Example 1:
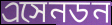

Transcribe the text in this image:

এসেনডন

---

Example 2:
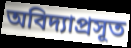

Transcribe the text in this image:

অবিদ্যাপ্রসূত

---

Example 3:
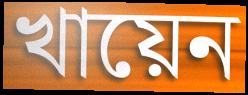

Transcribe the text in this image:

খায়েন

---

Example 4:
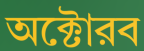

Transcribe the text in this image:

অক্টোরব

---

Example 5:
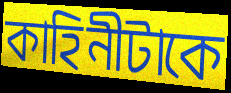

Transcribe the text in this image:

কাহিনীটাকে